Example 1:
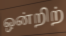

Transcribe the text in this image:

ஒன்றிற்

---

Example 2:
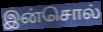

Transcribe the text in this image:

இன்சொல்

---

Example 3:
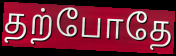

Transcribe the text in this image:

தற்போதே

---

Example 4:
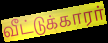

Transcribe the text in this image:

வீட்டுக்காரர்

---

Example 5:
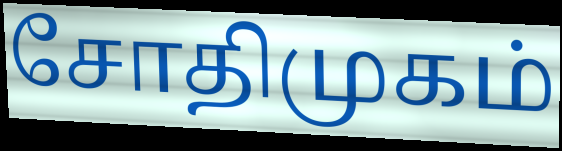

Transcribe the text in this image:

சோதிமுகம்